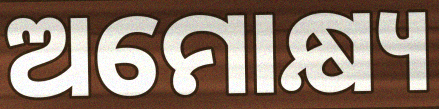
ଅମୋକ୍ଷ୍ୟ